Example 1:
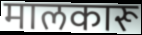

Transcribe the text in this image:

मालकारू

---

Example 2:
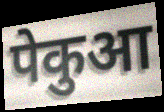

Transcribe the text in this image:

पेकुआ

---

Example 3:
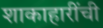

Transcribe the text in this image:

शाकाहारींची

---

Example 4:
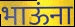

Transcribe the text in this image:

भाऊंना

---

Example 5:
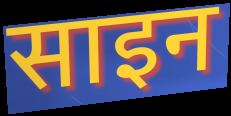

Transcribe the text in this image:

साइन